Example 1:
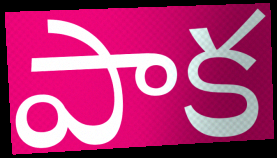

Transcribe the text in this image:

పాక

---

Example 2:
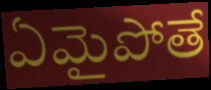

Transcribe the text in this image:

ఏమైపోతే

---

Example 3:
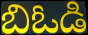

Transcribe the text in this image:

బిఓడి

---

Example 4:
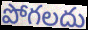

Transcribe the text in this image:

పోగలదు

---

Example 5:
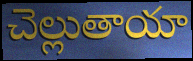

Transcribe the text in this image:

చెల్లుతాయా